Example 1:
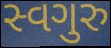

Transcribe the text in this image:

સ્વગુરુ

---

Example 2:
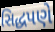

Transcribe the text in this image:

સિદ્ધપણે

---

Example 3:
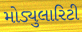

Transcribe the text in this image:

મોડ્યુલારિટી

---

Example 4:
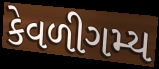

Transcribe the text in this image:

કેવળીગમ્ય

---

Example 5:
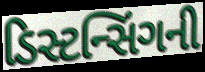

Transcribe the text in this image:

ડિસ્ટન્સિંગની